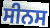
ਸੀਨਸ